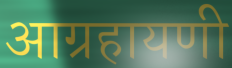
आग्रहायणी